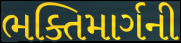
ભક્તિમાર્ગની